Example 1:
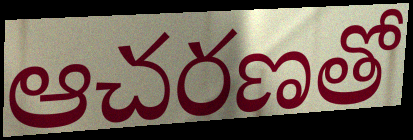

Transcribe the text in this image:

ఆచరణతో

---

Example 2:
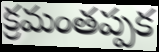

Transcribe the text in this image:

క్రమంతప్పక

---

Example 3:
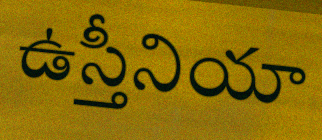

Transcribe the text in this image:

ఉస్తీనియా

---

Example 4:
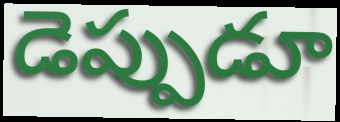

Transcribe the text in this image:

డెప్పుడూ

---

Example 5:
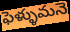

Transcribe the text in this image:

ఫెళ్ళుమనె